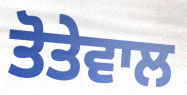
ਤੋਤੇਵਾਲ